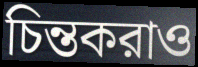
চিন্তকরাও